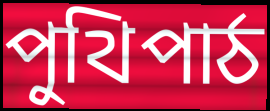
পুথিপাঠ